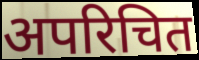
अपरिचित